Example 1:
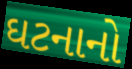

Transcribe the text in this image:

ઘટનાનો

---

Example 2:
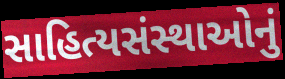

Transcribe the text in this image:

સાહિત્યસંસ્થાઓનું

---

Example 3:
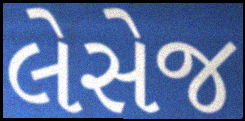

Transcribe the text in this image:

લેસેજ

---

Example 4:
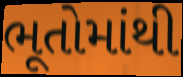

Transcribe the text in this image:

ભૂતોમાંથી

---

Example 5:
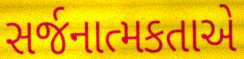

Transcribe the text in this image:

સર્જનાત્મકતાએ